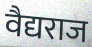
वैद्यराज